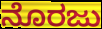
ನೊರಜು